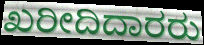
ಖರೀದಿದಾರರು